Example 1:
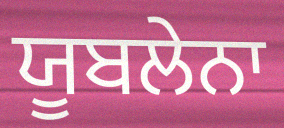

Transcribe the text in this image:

ਯੂਬਲੇਨਾ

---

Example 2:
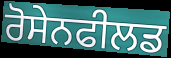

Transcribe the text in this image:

ਰੋਸੇਨਫੀਲਡ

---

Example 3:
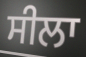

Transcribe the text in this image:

ਸੀਲਾ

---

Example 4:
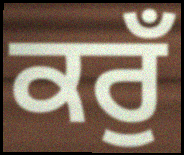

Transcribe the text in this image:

ਕਰੁਁ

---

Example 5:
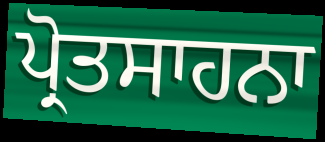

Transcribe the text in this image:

ਪ੍ਰੋਤਸਾਹਨਾ